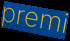
premi